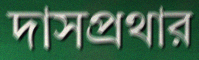
দাসপ্রথার